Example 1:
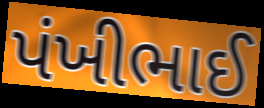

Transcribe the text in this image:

પંખીભાઈ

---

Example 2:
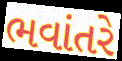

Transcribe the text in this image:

ભવાંતરે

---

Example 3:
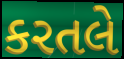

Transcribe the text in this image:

કરતલે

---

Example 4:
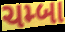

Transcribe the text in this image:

ચમ્બા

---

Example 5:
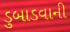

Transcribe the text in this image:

ડુબાડવાની